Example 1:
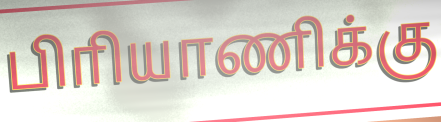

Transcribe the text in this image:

பிரியாணிக்கு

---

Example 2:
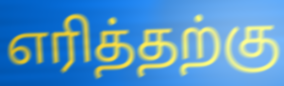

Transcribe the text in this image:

எரித்தற்கு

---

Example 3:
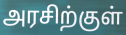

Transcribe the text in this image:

அரசிற்குள்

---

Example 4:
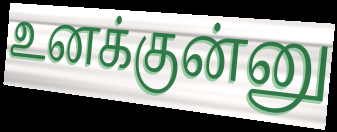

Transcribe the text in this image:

உனக்குன்னு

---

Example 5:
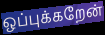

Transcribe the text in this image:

ஒப்புக்கறேன்